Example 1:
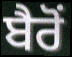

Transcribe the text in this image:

ਬੈਰੋਂ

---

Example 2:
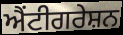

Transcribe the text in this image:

ਐਂਟੀਗਰੇਸ਼ਨ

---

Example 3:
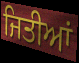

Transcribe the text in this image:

ਜਿਤੀਆਂ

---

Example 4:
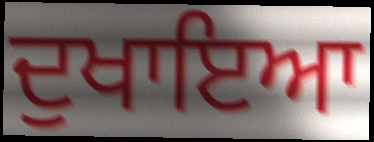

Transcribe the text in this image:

ਦੁਖਾਇਆ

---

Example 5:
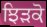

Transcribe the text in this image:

ਝਿੜਕੋ